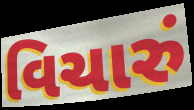
વિચારું